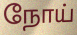
நோய்